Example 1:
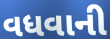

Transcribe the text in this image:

વધવાની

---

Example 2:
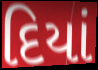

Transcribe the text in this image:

દિયાં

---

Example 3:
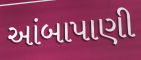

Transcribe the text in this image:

આંબાપાણી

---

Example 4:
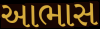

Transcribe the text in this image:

આભાસ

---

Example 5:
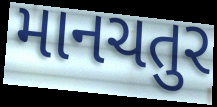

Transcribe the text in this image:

માનચતુર